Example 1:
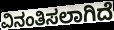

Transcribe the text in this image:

ವಿನಂತಿಸಲಾಗಿದೆ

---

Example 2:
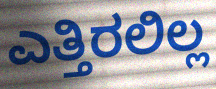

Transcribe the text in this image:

ಎತ್ತಿರಲಿಲ್ಲ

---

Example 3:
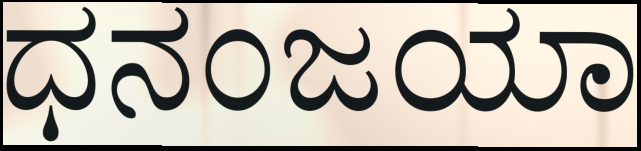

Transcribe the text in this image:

ಧನಂಜಯಾ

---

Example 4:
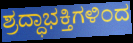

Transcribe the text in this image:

ಶ್ರದ್ಧಾಭಕ್ತಿಗಳಿಂದ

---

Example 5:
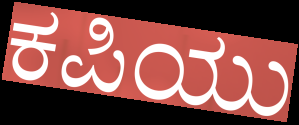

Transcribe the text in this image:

ಕಪಿಯು